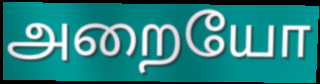
அறையோ